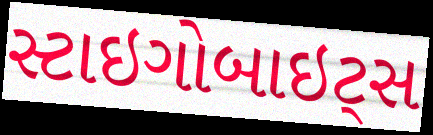
સ્ટાઇગોબાઇટ્સ